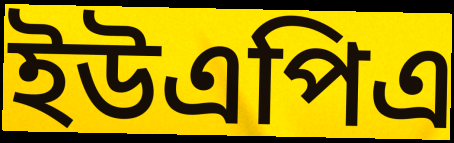
ইউএপিএ